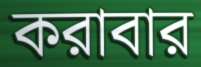
করাবার